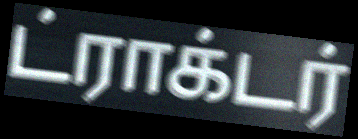
ட்ராக்டர்